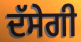
ਦੱਸੇਗੀ